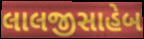
લાલજીસાહેબ